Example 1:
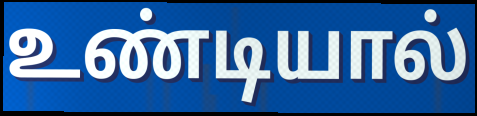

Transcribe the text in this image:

உண்டியால்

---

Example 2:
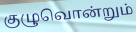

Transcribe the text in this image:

குழுவொன்றும்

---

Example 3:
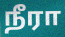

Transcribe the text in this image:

நீரா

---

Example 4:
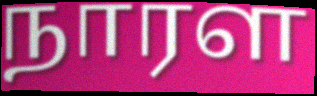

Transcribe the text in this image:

நாரள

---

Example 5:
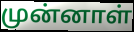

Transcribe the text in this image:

முன்னாள்